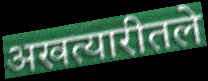
अखत्यारीतले